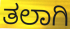
ತಲಾಗಿ